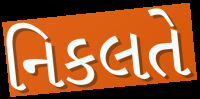
નિકલતે